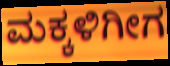
ಮಕ್ಕಳಿಗೀಗ